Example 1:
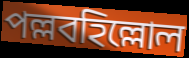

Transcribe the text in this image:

পল্লবহিল্লোল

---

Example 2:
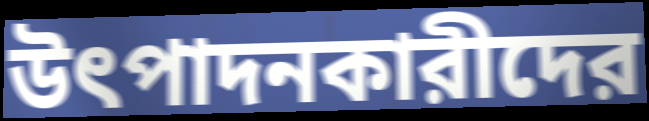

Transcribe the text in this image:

উৎপাদনকারীদের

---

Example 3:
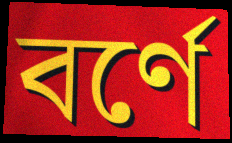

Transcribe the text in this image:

বর্ণে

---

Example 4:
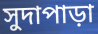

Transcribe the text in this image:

সুদাপাড়া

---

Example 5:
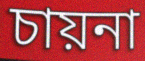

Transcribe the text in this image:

চায়না